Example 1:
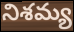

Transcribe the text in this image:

నిశమ్య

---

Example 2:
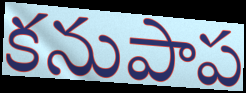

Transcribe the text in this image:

కనుపాప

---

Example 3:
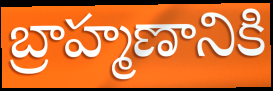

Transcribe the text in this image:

బ్రాహ్మణానికి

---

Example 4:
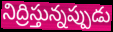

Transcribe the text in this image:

నిద్రిస్తున్నప్పుడు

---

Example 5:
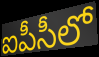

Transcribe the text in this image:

ఐపీసీలో